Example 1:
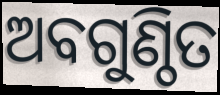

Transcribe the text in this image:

ଅବଗୁଣ୍ଠିତ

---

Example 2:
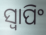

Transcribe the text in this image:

ସ୍ବାପିଂ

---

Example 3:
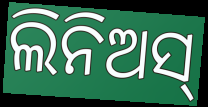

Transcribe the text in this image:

ଲିନିଅସ୍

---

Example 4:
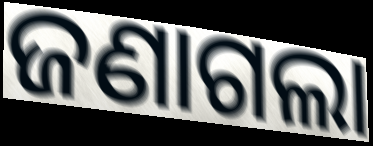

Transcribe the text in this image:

ଜଣାଗଲା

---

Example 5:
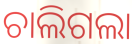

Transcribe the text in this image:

ଚାଲିଗଲା